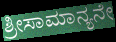
ಶ್ರೀಸಾಮಾನ್ಯನೇ